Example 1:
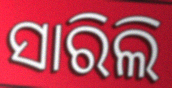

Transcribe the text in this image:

ସାରିଲି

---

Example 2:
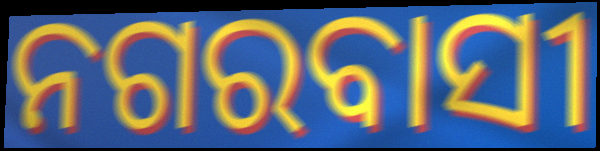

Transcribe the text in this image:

ନଗରବାସୀ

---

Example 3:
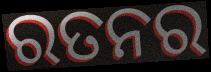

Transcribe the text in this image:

ରତନର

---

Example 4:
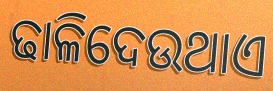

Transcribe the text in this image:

ଢାଳିଦେଉଥାଏ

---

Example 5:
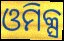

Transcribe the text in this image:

ଓମିକ୍ସ